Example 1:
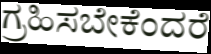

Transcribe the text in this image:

ಗ್ರಹಿಸಬೇಕೆಂದರೆ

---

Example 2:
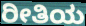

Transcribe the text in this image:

ರೀತಿಯ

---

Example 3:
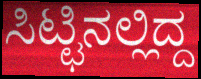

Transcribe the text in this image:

ಸಿಟ್ಟಿನಲ್ಲಿದ್ದ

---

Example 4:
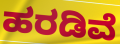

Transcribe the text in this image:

ಹರಡಿವೆ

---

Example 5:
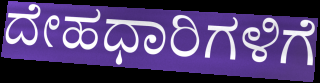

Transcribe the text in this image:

ದೇಹಧಾರಿಗಳಿಗೆ